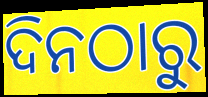
ଦିନଠାରୁ